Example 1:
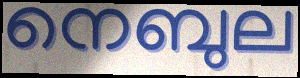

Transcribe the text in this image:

നെബുല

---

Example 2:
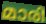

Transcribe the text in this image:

മാരി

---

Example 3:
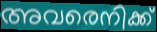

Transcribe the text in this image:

അവരെനിക്ക്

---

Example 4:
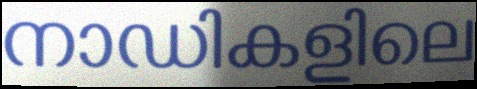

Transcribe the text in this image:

നാഡികളിലെ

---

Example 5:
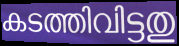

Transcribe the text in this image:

കടത്തിവിട്ടതു